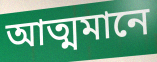
আত্মমানে